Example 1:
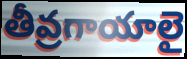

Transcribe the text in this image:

తీవ్రగాయాలై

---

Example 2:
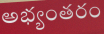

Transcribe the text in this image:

అభ్యంతరం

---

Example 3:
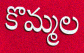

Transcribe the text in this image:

కొమ్మల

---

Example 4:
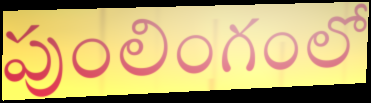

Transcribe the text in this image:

పుంలింగంలో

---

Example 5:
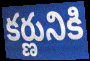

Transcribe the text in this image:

కర్ణునికి